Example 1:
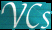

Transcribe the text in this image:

VCs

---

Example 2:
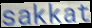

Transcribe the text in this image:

sakkat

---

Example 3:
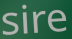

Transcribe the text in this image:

sire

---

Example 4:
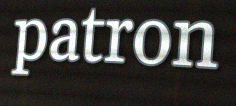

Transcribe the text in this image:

patron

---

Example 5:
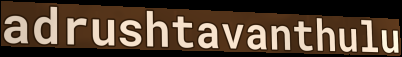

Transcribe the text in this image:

adrushtavanthulu